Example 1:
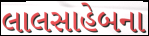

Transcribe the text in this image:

લાલસાહેબના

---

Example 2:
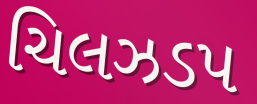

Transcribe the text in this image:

ચિલઝડપ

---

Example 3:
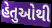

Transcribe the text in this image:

હેતુઓથી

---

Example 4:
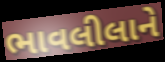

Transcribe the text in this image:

ભાવલીલાને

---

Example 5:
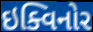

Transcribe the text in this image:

ઇક્વિનોર